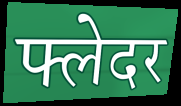
फ्लेदर